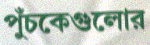
পুঁচকেগুলোর